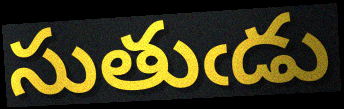
సుతుఁడు